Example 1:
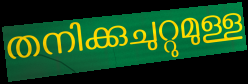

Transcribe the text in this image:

തനിക്കുചുറ്റുമുള്ള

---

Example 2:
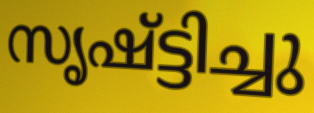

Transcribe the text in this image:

സൃഷ്ട്ടിച്ചു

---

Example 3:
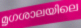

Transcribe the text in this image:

മൃഗശാലയിലെ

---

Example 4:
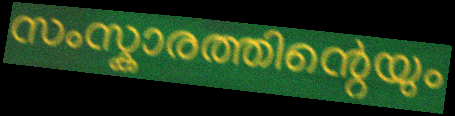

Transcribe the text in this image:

സംസ്കാരത്തിന്റെയും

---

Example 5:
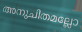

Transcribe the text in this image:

അനുചിതമല്ലോ